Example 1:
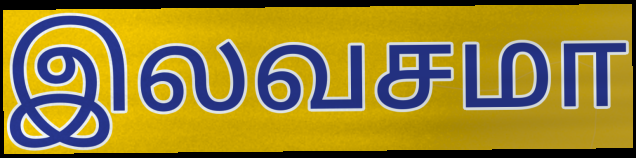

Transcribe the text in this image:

இலவசமா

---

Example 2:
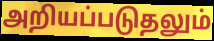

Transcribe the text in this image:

அறியப்படுதலும்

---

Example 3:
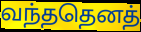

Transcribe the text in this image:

வந்ததெனத்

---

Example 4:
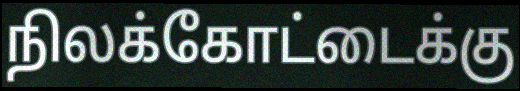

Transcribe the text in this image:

நிலக்கோட்டைக்கு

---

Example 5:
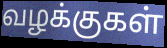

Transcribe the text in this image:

வழக்குகள்